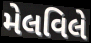
મેલવિલે